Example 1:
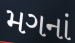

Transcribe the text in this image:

મગનાં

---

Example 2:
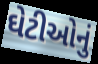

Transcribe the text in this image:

ઘેટીઓનું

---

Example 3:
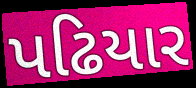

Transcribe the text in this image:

પઢિયાર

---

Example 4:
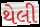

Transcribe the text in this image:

થેલી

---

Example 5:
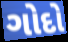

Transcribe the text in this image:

ગોદો